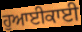
ਹੁਆਈਕਾਈ